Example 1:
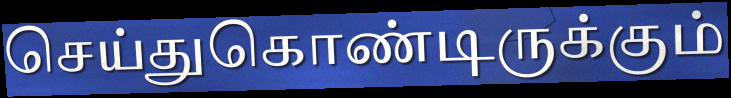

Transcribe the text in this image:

செய்துகொண்டிருக்கும்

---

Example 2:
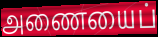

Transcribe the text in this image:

அணையைப்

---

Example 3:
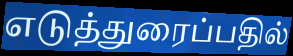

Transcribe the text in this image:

எடுத்துரைப்பதில்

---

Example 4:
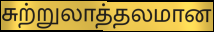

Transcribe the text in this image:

சுற்றுலாத்தலமான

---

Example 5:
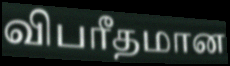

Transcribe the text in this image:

விபரீதமான